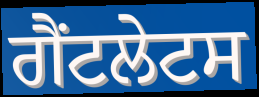
ਗੈਂਟਲੇਟਸ